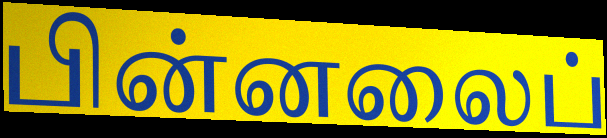
பின்னலைப்